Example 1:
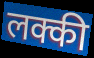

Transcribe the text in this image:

लक्की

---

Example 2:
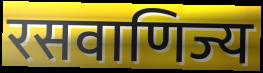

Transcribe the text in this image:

रसवाणिज्य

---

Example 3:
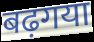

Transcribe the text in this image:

बढ़गया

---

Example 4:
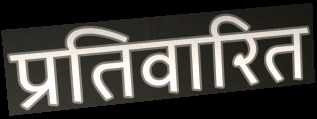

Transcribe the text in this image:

प्रतिवारित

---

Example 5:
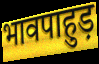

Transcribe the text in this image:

भावपाहुड़